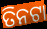
ତିନଟା